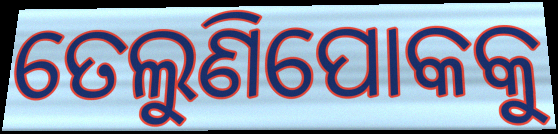
ତେଲୁଣିପୋକକୁ